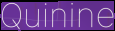
Quinine